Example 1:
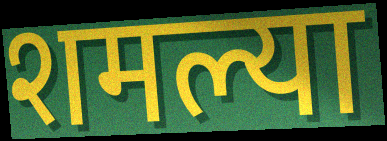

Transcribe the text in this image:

शमल्या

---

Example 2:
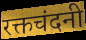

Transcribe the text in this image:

रक्तचंदनी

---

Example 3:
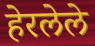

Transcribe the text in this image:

हेरलेले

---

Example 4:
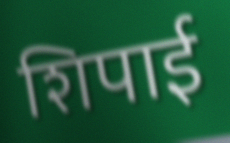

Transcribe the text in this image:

शिपाई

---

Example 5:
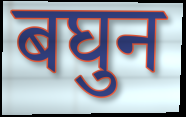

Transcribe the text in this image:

बघुन